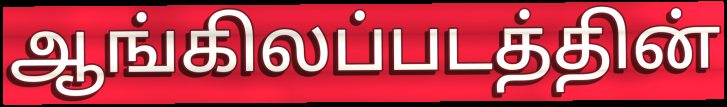
ஆங்கிலப்படத்தின்